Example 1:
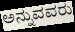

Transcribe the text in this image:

ಅನ್ನುವವರು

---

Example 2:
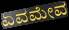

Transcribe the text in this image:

ಏವಮೇವ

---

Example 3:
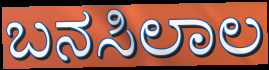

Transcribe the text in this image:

ಬನಸಿಲಾಲ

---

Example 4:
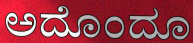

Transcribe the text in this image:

ಅದೊಂದೂ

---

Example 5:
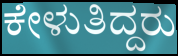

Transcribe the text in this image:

ಕೇಳುತಿದ್ದರು